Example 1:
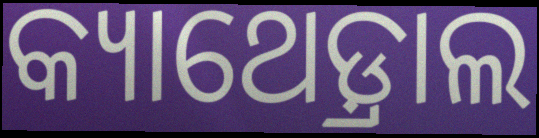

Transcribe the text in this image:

କ୍ୟାଥେଡ଼୍ରାଲ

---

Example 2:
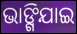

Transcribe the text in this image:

ଭାଙ୍ଗିଯାଇ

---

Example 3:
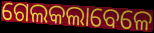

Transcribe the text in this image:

ଗେଲକଲାବେଳେ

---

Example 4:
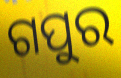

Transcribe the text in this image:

ଗପୁର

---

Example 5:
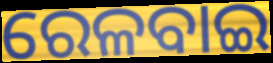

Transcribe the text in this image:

ରେଳବାଇ